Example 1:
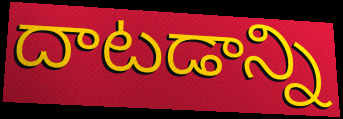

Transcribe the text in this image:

దాటడాన్ని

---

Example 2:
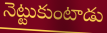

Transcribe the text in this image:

నెట్టుకుంటాడు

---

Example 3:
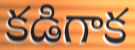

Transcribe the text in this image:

కడిగాక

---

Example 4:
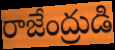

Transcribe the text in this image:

రాజేంద్రుడి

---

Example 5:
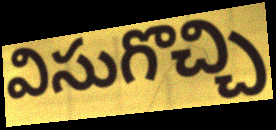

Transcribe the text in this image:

విసుగొచ్చి